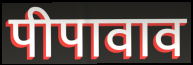
पीपावाव